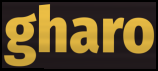
gharo